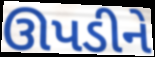
ઊપડીને